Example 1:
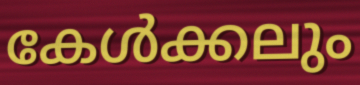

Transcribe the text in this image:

കേൾക്കലും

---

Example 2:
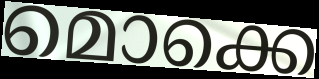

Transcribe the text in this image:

മൊക്കെ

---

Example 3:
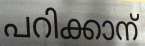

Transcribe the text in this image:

പറിക്കാന്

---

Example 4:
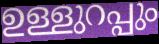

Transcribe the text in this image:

ഉള്ളുറപ്പും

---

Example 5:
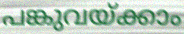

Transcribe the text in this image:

പങ്കുവയ്ക്കാം